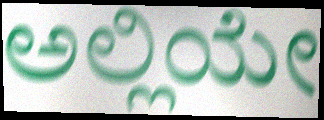
ಅಲ್ಲಿಯೇ